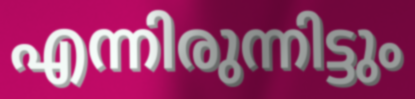
എന്നിരുന്നിട്ടും